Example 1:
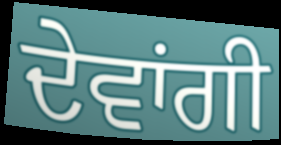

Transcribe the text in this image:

ਦੇਵਾਂਗੀ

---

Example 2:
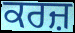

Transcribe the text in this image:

ਕਰਜ਼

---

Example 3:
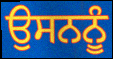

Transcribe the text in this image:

ਉਸਨਨੂੰ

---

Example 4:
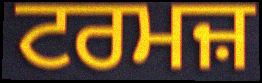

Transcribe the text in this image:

ਟਰਮਜ਼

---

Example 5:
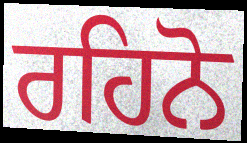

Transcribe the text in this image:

ਰਹਿਨੋ